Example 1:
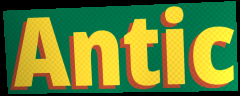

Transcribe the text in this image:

Antic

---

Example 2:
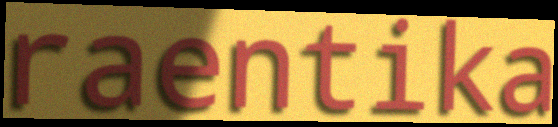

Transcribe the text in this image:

raentika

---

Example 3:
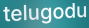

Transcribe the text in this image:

telugodu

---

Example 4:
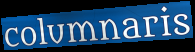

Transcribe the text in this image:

columnaris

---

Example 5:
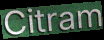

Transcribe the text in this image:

Citram